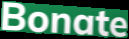
Bonate